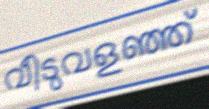
വീടുവളഞ്ഞ്